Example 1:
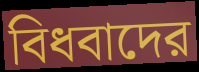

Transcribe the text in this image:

বিধবাদের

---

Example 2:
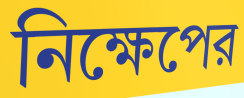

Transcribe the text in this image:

নিক্ষেপের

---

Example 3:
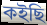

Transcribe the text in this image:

কইছি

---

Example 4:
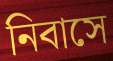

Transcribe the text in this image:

নিবাসে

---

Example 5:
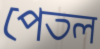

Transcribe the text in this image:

পেতল